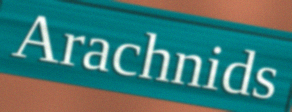
Arachnids